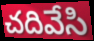
చదివేసి